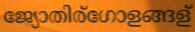
ജ്യോതിര്ഗോളങ്ങള്